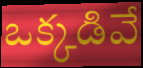
ఒక్కడివే